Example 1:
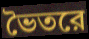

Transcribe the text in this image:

ভৈতরে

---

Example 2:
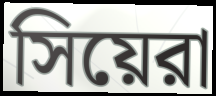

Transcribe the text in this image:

সিয়েরা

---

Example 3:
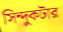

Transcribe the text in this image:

সিন্দুকটার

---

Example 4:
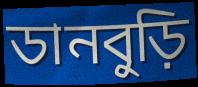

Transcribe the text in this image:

ডানবুড়ি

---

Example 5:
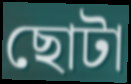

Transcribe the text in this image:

ছোটা